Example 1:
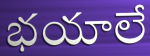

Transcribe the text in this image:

భయాలే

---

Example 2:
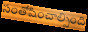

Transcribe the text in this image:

సంతోషించాల్సింది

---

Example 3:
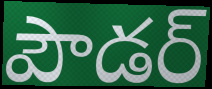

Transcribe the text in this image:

పౌడర్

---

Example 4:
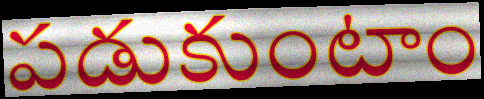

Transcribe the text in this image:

పడుకుంటాం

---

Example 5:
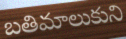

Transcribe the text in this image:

బతిమాలుకుని